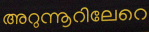
അറുന്നൂറിലേറെ